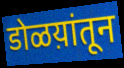
डोळय़ांतून